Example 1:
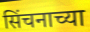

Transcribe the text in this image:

सिंचनाच्या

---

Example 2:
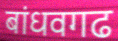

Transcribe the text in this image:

बांधवगढ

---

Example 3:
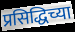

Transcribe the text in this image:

प्रसिद्धिच्या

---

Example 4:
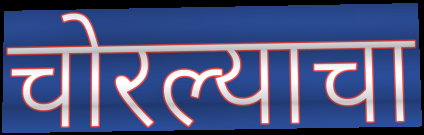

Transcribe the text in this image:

चोरल्याचा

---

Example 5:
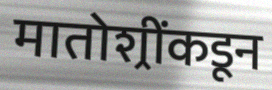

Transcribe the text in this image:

मातोश्रींकडून